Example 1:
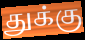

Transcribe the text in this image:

துக்கு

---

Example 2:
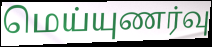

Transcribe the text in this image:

மெய்யுணர்வு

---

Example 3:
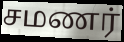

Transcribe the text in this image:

சமணர்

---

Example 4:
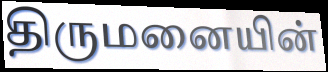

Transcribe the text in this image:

திருமனையின்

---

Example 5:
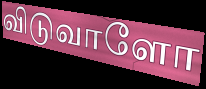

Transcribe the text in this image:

விடுவாளோ